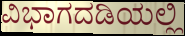
ವಿಭಾಗದಡಿಯಲ್ಲಿ